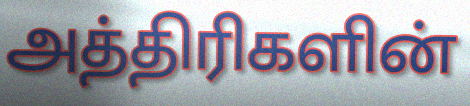
அத்திரிகளின்